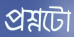
প্ৰশ্নটো